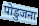
पोडुजना